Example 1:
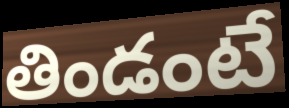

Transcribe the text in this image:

తిండంటే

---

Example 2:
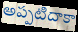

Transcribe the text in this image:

అప్పటిదాకా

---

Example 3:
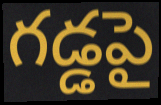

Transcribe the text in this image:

గడ్డపై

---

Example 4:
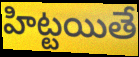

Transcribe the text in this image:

హిట్టయితే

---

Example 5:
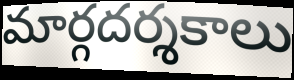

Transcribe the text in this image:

మార్గదర్శకాలు